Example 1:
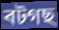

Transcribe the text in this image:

বটগছ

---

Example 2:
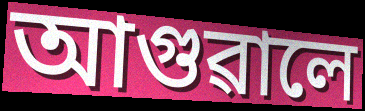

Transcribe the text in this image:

আগুৱালে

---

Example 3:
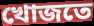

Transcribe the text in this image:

খোজতে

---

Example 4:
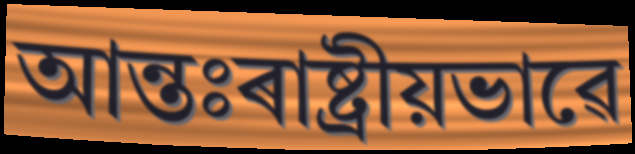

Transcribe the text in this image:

আন্তঃৰাষ্ট্ৰীয়ভাৱে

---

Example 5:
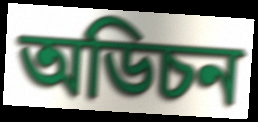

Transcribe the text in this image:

অডিচন